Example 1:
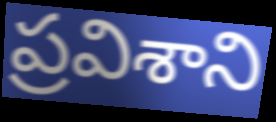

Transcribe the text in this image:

ప్రవిశాని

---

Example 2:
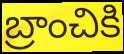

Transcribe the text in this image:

బ్రాంచికి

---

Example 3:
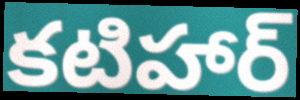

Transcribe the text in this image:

కటిహార్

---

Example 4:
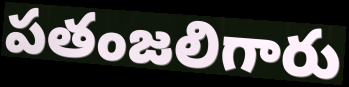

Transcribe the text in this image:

పతంజలిగారు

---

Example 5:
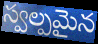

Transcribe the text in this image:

స్వల్పమైన